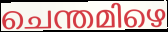
ചെന്തമിഴെ